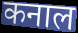
कनाल